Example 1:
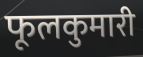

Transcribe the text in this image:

फूलकुमारी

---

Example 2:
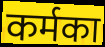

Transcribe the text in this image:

कर्मका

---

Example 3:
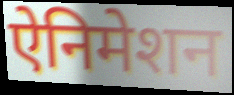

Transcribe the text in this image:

ऐनिमेशन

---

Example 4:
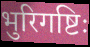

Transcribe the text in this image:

भुरिगष्टिः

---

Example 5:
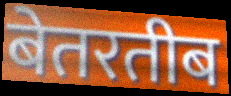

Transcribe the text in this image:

बेतरतीब